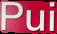
Pui